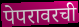
पेपरावरची